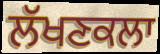
ਲੱਖਣਕਲਾ